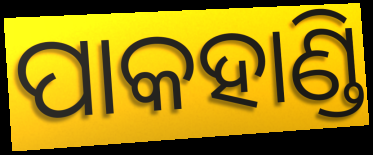
ପାକହାଣ୍ଡି